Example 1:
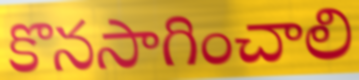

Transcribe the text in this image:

కొనసాగించాలి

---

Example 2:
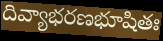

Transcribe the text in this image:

దివ్యాభరణభూషితః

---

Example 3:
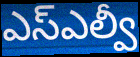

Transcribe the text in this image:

ఎస్ఎల్వీ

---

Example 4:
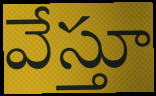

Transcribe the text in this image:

వేస్తూ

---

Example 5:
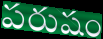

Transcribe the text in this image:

పరుషం